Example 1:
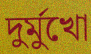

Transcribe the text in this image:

দুর্মুখো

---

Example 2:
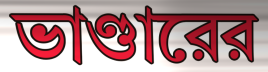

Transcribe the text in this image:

ভাণ্ডারের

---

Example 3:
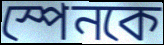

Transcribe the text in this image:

স্পেনকে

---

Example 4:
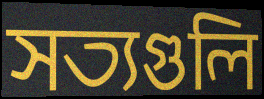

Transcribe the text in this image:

সত্যগুলি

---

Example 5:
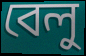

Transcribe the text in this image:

বেলু